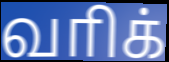
வரிக்